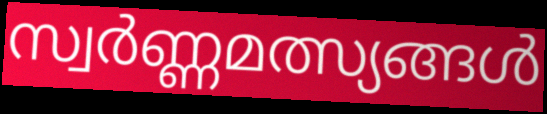
സ്വർണ്ണമത്സ്യങ്ങൾ